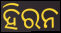
ହିରନ